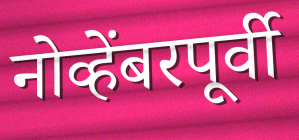
नोव्हेंबरपूर्वी